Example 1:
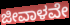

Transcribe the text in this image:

ಜೀವಾಳವೇ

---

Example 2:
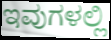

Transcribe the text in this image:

ಇವುಗಳಲ್ಲಿ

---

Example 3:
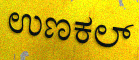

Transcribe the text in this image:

ಉಣಕಲ್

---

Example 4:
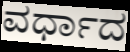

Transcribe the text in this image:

ವರ್ಧಾದ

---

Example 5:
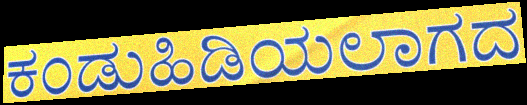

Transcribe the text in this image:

ಕಂಡುಹಿಡಿಯಲಾಗದ